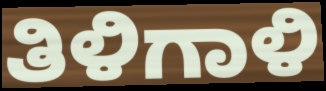
ತಿಳಿಗಾಳಿ